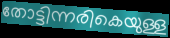
തോട്ടിന്നരികെയുള്ള